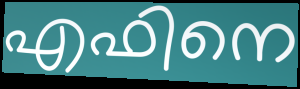
എഫിനെ